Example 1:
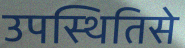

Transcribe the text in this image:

उपस्थितिसे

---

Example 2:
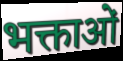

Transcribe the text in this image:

भक्ताओं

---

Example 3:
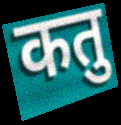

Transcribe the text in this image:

कतु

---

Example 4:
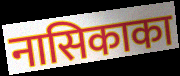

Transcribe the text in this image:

नासिकाका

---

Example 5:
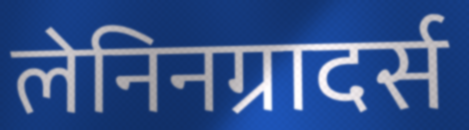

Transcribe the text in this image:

लेनिनग्रादर्स